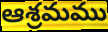
ఆశ్రమము